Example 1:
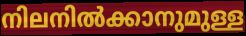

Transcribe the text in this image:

നിലനിൽക്കാനുമുള്ള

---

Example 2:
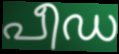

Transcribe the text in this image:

പീഡ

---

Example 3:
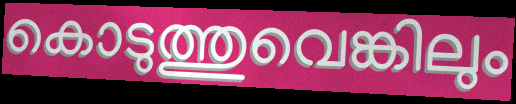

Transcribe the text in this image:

കൊടുത്തുവെങ്കിലും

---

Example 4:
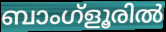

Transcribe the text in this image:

ബാംഗ്ളൂരിൽ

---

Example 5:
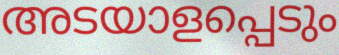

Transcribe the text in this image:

അടയാളപ്പെടും